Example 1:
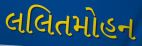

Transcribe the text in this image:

લલિતમોહન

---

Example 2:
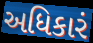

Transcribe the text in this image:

અધિકારં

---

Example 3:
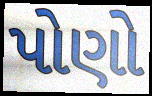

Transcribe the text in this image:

પોણો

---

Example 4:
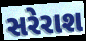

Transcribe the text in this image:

સરેરાશ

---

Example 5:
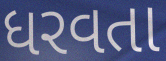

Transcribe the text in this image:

ધરવતા